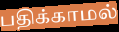
பதிக்காமல்